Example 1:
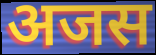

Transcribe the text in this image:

अजस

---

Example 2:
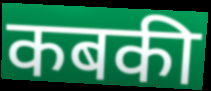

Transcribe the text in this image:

कबकी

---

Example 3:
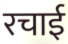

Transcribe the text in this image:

रचाई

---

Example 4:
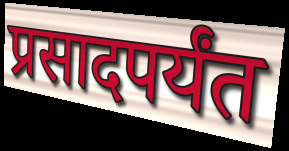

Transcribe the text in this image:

प्रसादपर्यंत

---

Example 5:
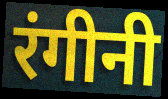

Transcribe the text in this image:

रंगीनी